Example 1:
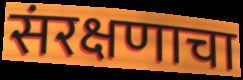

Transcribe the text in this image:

संरक्षणाचा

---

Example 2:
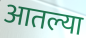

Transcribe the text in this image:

आतल्या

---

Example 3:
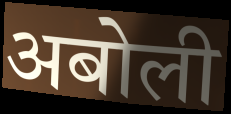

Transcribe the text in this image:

अबोली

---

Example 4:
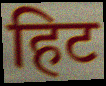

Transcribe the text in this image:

हिट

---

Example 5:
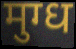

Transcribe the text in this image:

मुग्ध